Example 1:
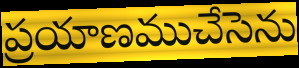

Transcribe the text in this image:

ప్రయాణముచేసెను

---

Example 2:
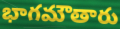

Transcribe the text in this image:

భాగమౌతారు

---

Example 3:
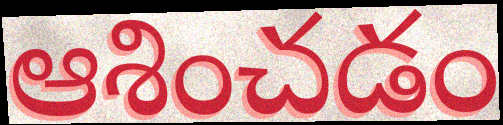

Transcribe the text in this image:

ఆశించడం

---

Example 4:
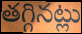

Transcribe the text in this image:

తగ్గినట్లు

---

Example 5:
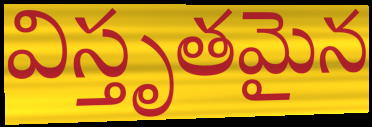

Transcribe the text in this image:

విస్తృతమైన